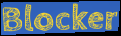
Blocker